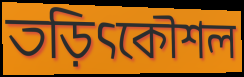
তড়িৎকৌশল